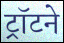
ट्रॉटने